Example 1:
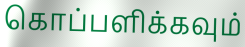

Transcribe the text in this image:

கொப்பளிக்கவும்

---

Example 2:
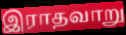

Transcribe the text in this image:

இராதவாறு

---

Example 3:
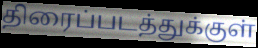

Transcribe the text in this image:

திரைப்படத்துக்குள்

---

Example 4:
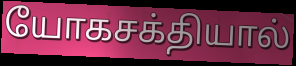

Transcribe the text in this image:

யோகசக்தியால்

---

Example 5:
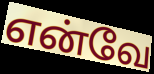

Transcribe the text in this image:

என்வே